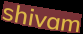
shivam